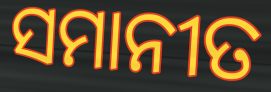
ସମାନୀତ